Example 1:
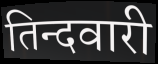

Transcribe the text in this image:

तिन्दवारी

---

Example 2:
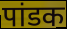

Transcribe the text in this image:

पांडक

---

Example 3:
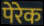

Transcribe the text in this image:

पेरेक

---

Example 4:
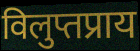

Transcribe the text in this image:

विलुप्तप्राय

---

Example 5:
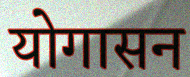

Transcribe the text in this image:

योगासन